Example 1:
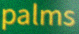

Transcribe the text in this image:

palms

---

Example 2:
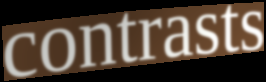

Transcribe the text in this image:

contrasts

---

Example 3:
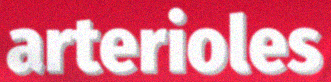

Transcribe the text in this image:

arterioles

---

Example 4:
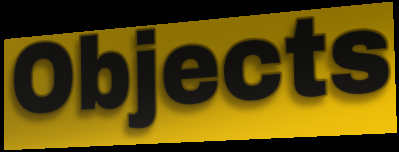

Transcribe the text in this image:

Objects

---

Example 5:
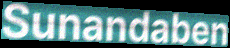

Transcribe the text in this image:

Sunandaben